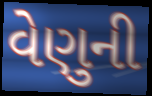
વેણુની